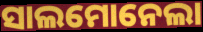
ସାଲମୋନେଲା